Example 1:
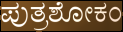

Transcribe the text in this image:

ಪುತ್ರಶೋಕಂ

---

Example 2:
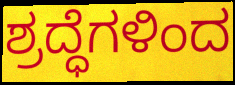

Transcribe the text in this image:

ಶ್ರದ್ಧೆಗಳಿಂದ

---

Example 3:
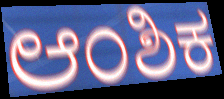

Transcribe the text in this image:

ಆಂಶಿಕ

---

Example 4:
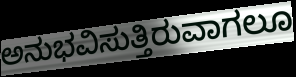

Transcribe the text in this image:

ಅನುಭವಿಸುತ್ತಿರುವಾಗಲೂ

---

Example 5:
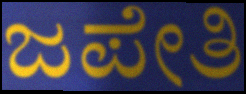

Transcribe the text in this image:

ಜಪೇತಿ